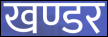
खण्डर